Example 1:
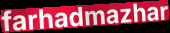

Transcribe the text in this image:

farhadmazhar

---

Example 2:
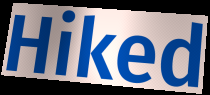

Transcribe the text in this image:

Hiked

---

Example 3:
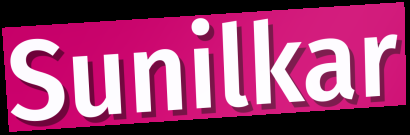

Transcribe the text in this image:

Sunilkar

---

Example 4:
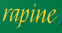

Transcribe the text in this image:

rapine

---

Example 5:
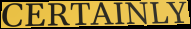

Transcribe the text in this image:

CERTAINLY